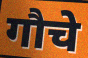
गौचे